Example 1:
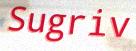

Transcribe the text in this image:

Sugriv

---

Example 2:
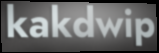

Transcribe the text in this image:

kakdwip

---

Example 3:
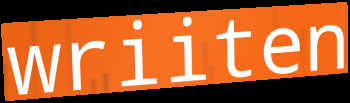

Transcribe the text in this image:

wriiten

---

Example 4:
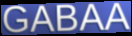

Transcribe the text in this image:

GABAA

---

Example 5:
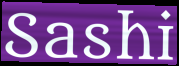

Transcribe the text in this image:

Sashi